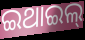
ଇଥାଇଲ୍